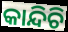
କାନ୍ଦିଚି